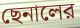
ছেনালের